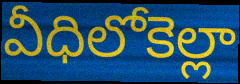
వీధిలోకెల్లా